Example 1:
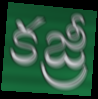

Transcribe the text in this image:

కజ్రీ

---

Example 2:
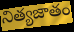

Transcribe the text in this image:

నిత్యజాతం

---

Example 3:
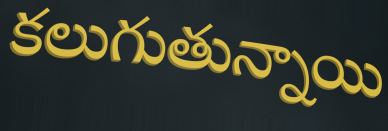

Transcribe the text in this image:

కలుగుతున్నాయి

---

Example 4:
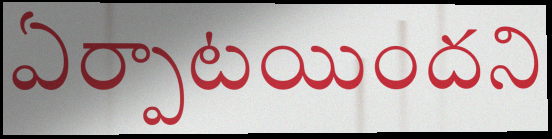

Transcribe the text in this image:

ఏర్పాటయిందని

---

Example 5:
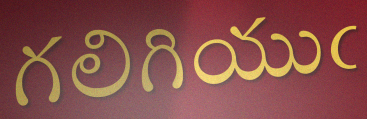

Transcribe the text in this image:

గలిగియుఁ